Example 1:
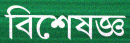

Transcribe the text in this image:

বিশেষজ্ঞ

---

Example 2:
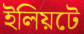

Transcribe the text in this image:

ইলিয়টে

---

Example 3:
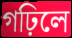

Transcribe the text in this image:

গঢ়িলে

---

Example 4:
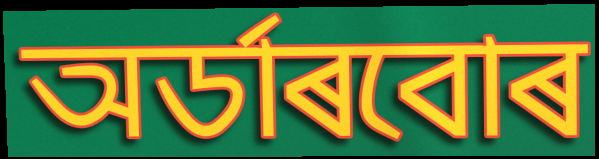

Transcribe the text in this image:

অৰ্ডাৰবোৰ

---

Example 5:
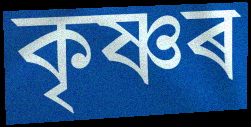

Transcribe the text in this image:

কৃষ্ণৰ